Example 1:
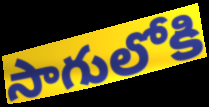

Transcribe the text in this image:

సాగులోకి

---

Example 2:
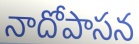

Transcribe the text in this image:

నాదోపాసన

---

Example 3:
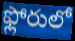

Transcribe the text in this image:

ఫ్లోరులో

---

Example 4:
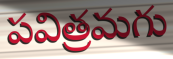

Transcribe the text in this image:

పవిత్రమగు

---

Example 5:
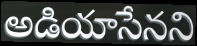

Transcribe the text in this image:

అడియాసేనని